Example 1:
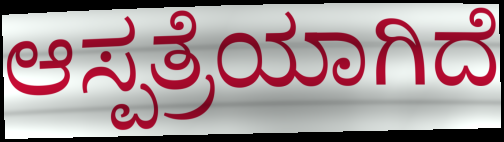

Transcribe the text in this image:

ಆಸ್ಪತ್ರೆಯಾಗಿದೆ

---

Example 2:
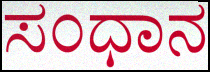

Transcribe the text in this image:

ಸಂಧಾನ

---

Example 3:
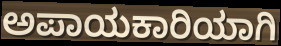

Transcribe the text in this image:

ಅಪಾಯಕಾರಿಯಾಗಿ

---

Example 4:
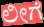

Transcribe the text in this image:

ಲೀಗೆ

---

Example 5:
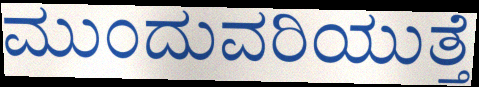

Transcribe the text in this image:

ಮುಂದುವರಿಯುತ್ತೆ